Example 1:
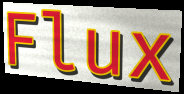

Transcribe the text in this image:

Flux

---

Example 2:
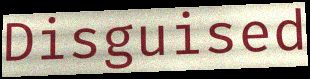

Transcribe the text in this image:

Disguised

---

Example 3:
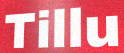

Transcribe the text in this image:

Tillu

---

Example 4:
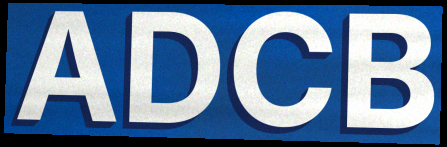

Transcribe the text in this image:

ADCB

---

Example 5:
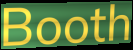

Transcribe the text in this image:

Booth